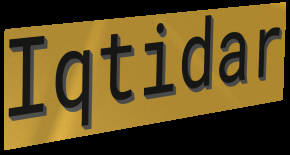
Iqtidar